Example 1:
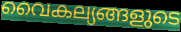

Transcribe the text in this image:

വൈകല്യങ്ങളുടെ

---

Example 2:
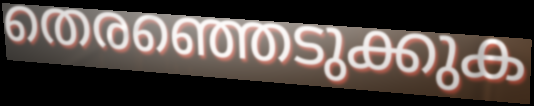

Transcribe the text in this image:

തെരഞ്ഞെടുക്കുക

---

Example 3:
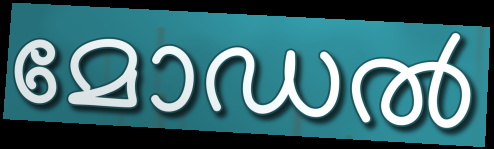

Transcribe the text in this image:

മോഡൽ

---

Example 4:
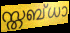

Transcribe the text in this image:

സ്തബ്ധാ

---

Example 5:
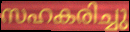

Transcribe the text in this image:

സഹകരിച്ചു